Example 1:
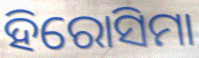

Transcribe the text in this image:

ହିରୋସିମା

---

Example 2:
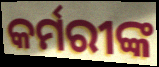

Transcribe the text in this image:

କର୍ମରୀଙ୍କ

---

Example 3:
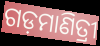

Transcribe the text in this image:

ଗଡ଼ମାଣିତ୍ରୀ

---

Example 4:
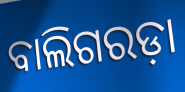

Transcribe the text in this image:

ବାଲିଗରଡ଼ା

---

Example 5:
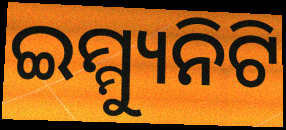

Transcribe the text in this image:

ଇମ୍ମ୍ୟୁନିଟି